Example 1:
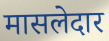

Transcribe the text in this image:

मासलेदार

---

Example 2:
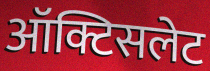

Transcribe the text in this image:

ऑक्टिसलेट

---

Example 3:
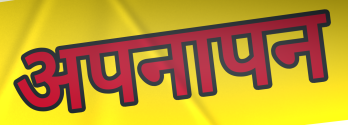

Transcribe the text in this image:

अपनापन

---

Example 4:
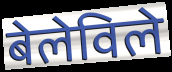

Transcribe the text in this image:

बेलेविले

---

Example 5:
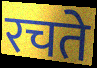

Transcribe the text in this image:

रचते